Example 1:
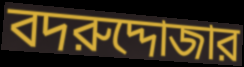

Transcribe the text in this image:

বদরুদ্দোজার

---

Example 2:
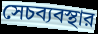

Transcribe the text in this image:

সেচব্যবস্থার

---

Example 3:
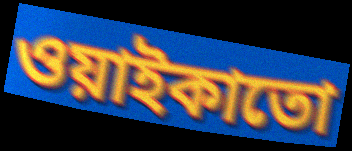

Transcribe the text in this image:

ওয়াইকাতো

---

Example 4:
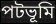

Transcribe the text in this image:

পটভূমি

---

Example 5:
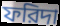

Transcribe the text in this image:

ফরিদা